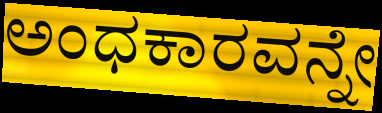
ಅಂಧಕಾರವನ್ನೇ